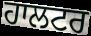
ਹਾਲਟਰ